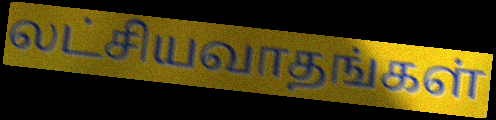
லட்சியவாதங்கள்